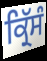
ਕ੍ਰਿੱਸੰ